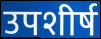
उपशीर्ष